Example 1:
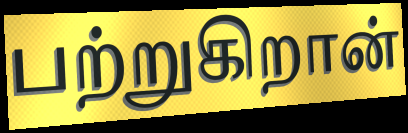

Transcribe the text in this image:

பற்றுகிறான்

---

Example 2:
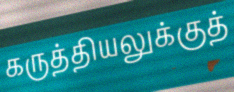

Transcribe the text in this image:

கருத்தியலுக்குத்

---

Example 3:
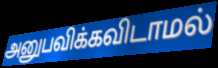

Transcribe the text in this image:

அனுபவிக்கவிடாமல்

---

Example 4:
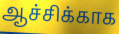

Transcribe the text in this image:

ஆச்சிக்காக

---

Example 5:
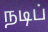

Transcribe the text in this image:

நடிப்